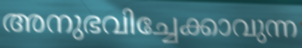
അനുഭവിച്ചേക്കാവുന്ന